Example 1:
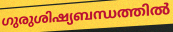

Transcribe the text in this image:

ഗുരുശിഷ്യബന്ധത്തിൽ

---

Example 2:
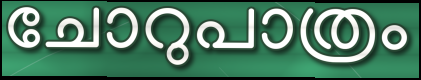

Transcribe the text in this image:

ചോറുപാത്രം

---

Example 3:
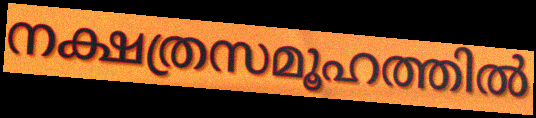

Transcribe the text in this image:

നക്ഷത്രസമൂഹത്തിൽ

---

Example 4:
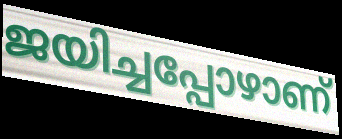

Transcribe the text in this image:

ജയിച്ചപ്പോഴാണ്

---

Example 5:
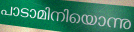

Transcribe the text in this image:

പാടാമിനിയൊന്നു